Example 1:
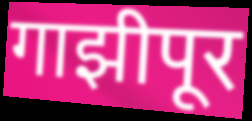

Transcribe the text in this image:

गाझीपूर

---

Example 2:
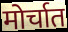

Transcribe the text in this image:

मोर्चात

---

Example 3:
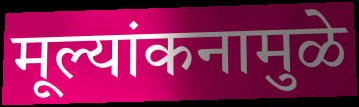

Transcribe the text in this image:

मूल्यांकनामुळे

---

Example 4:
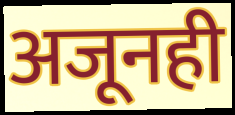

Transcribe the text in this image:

अजूनही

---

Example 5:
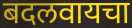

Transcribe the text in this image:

बदलवायचा